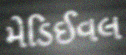
મેડિઈવલ